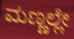
ಮಣ್ಣಲ್ಲೇ